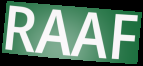
RAAF